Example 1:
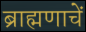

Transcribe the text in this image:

ब्राह्मणाचें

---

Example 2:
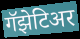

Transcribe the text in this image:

गॅझेटिअर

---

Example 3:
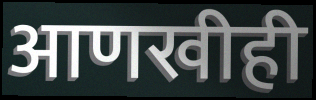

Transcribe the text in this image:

आणखीही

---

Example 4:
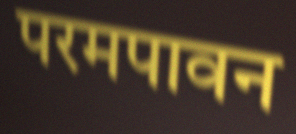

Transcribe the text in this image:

परमपावन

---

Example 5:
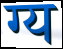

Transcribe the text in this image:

ग्य